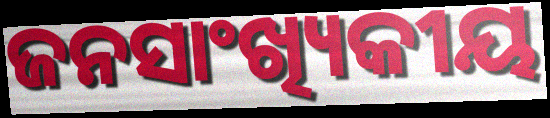
ଜନସାଂଖ୍ୟିକୀୟ